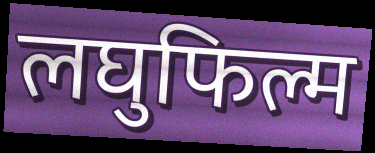
लघुफिल्म